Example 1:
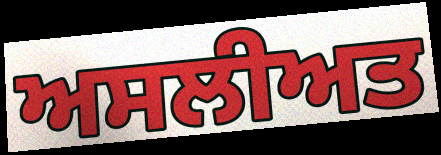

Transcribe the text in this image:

ਅਸਲੀਅਤ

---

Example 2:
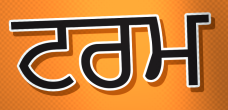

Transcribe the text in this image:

ਟਰਮ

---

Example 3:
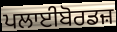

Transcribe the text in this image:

ਪਲਾਈਬੋਰਡਜ਼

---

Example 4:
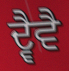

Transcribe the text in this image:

ਦ੍ਵੈਵੈ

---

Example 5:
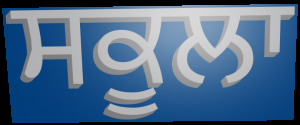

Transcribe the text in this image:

ਸਕੂਲਾ